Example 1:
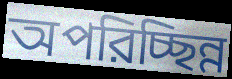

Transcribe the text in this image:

অপরিচ্ছিন্ন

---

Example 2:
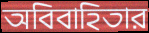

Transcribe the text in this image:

অবিবাহিতার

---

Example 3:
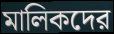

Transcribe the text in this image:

মালিকদের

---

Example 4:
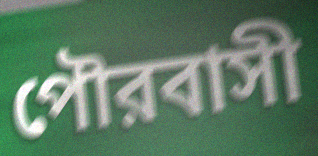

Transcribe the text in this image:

পৌরবাসী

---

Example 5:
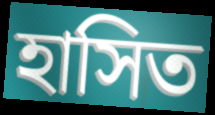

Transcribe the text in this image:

হাসিত